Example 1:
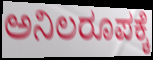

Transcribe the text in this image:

ಅನಿಲರೂಪಕ್ಕೆ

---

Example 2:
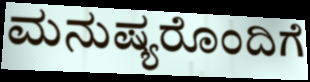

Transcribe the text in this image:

ಮನುಷ್ಯರೊಂದಿಗೆ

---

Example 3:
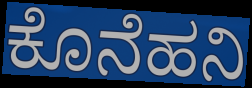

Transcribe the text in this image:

ಕೊನೆಹನಿ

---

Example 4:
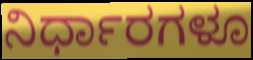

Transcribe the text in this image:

ನಿರ್ಧಾರಗಳೂ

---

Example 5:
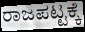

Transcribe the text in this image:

ರಾಜಪಟ್ಟಕ್ಕೆ